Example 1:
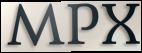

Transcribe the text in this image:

MPX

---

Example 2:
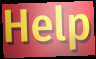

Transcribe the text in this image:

Help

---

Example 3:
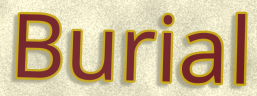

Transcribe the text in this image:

Burial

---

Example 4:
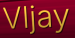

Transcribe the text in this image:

VIjay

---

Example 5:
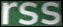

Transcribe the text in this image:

rss